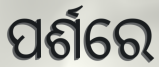
ପର୍ଶରେ